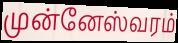
முன்னேஸ்வரம்